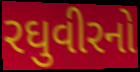
રઘુવીરનો